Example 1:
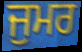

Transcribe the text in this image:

ਜੁਮਰ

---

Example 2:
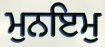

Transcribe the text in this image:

ਮੁਨਇਮੁ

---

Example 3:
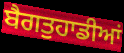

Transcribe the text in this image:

ਬੈਗਤੁਹਾਡੀਆਂ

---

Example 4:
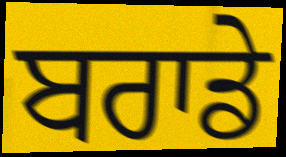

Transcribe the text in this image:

ਬਰਾਡੇ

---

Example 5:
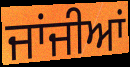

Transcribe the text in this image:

ਜਾਂਜੀਆਂ